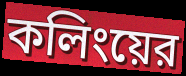
কলিংয়ের